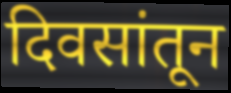
दिवसांतून